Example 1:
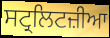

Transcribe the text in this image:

ਸਟ੍ਰਲਿਟਜ਼ੀਆ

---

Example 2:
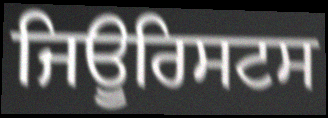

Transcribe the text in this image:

ਜਿਊਰਿਸਟਸ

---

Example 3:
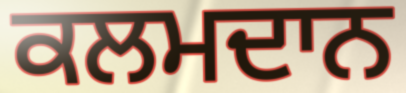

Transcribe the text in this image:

ਕਲਮਦਾਨ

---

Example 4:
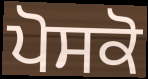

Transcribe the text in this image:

ਪੋਸਕੋ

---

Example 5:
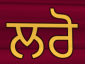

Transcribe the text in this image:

ਲਰੋ